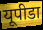
यूपीडा